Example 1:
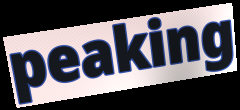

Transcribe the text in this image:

peaking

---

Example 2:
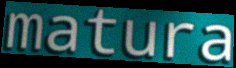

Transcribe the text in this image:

matura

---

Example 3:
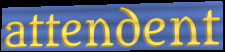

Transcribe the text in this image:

attendent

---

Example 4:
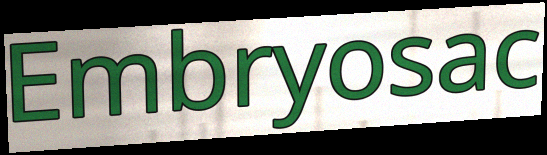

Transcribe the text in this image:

Embryosac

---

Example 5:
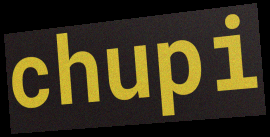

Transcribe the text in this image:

chupi